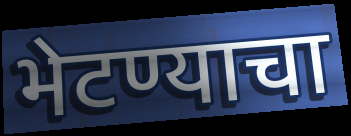
भेटण्याचा